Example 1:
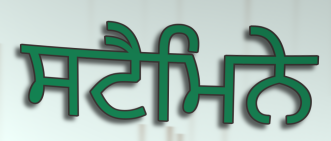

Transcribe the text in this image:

ਸਟੈਮਿਨੇ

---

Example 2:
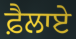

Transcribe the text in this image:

ਫ਼ੈਲਾਏ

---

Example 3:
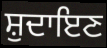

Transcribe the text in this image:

ਸ਼ੁਦਾਇਣ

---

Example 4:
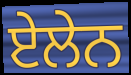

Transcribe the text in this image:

ਏਲੇਨ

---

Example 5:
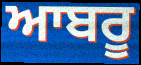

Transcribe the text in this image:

ਆਬਰੂ